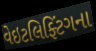
વેઇટલિફ્ટિંગના